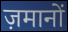
ज़मानों